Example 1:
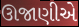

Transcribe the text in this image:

ઊજાણીએ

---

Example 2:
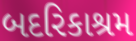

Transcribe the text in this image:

બદરિકાશ્રમ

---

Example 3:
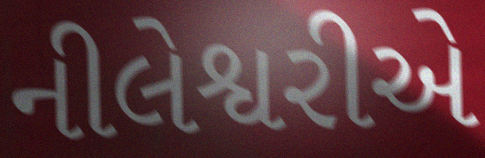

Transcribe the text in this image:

નીલેશ્વરીએ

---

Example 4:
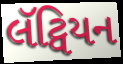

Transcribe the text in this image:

લૅટ્વિયન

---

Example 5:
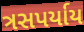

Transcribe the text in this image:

ત્રસપર્યાય